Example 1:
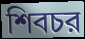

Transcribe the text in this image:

শিবচর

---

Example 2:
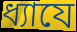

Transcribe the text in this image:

ধ্যাযে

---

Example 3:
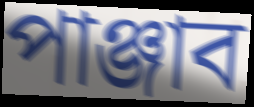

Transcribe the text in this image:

পাঞ্জাব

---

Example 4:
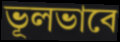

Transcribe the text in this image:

ভূলভাবে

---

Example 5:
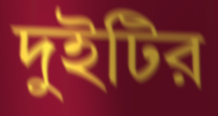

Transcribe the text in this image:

দুইটির